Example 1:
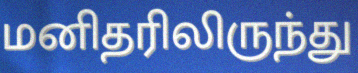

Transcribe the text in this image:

மனிதரிலிருந்து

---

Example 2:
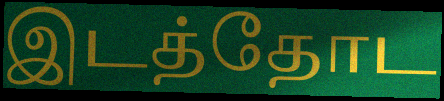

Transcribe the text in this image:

இடத்தோட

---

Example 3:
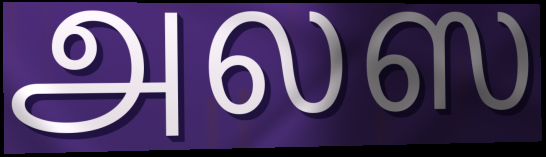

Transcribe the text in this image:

அலஸ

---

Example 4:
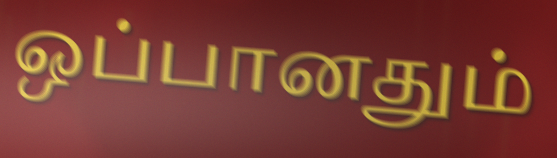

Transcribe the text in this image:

ஒப்பானதும்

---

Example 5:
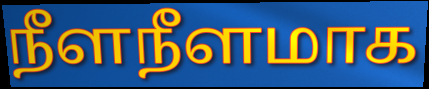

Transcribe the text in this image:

நீளநீளமாக